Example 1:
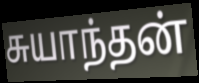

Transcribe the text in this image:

சுயாந்தன்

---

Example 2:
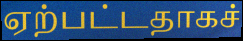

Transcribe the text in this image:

ஏற்பட்டதாகச்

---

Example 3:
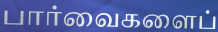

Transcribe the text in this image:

பார்வைகளைப்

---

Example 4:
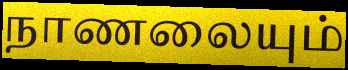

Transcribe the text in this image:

நாணலையும்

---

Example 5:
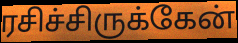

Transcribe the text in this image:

ரசிச்சிருக்கேன்